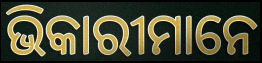
ଭିକାରୀମାନେ